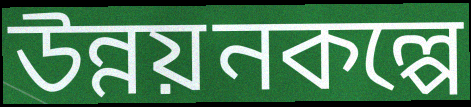
উন্নয়নকল্পে